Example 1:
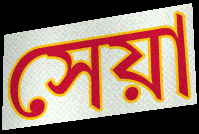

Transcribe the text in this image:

সেয়া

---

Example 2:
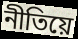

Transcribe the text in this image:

নীতিয়ে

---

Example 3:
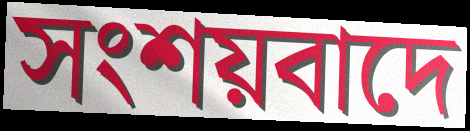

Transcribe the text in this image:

সংশয়বাদে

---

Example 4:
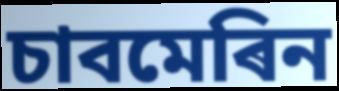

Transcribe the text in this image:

চাবমেৰিন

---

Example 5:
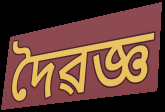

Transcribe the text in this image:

দৈৱজ্ঞ